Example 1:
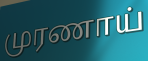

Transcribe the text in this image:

முரணாய்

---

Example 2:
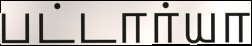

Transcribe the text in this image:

பட்டார்யா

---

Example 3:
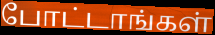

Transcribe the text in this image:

போட்டாங்கள்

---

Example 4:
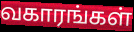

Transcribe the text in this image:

வகாரங்கள்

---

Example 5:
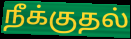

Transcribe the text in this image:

நீக்குதல்